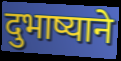
दुभाष्याने